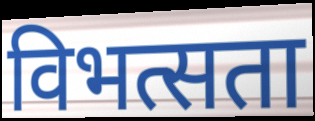
विभत्सता